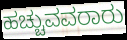
ಹಚ್ಚುವವರಾರು